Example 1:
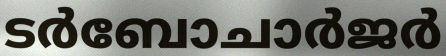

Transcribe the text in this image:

ടർബോചാർജർ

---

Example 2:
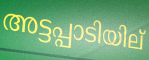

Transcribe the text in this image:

അട്ടപ്പാടിയില്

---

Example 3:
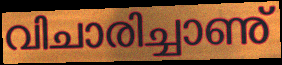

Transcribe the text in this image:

വിചാരിച്ചാണു്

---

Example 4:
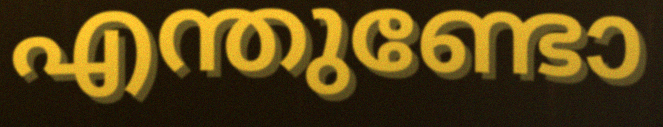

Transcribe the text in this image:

എന്തുണ്ടോ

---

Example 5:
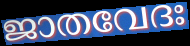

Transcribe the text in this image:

ജാതവേദഃ